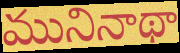
మునినాథా